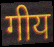
गीय